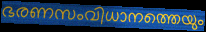
ഭരണസംവിധാനത്തെയും